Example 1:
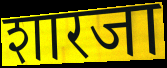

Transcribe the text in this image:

शारजा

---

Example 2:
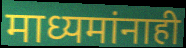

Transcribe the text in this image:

माध्यमांनाही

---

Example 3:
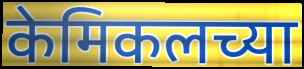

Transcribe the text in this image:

केमिकलच्या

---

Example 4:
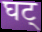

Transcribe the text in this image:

घट्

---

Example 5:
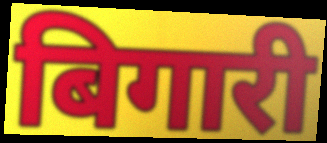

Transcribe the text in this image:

बिगारी